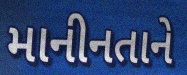
માનીનતાને